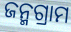
ଜନ୍ମଗ୍ରାମ